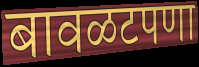
बावळटपणा